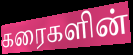
கரைகளின்